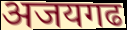
अजयगढ